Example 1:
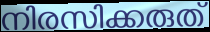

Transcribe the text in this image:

നിരസിക്കരുത്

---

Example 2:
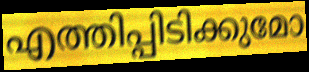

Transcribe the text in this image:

എത്തിപ്പിടിക്കുമോ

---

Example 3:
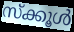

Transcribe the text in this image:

സ്ക്കൂൾ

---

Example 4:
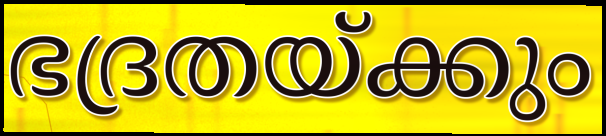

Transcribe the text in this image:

ഭദ്രതയ്ക്കും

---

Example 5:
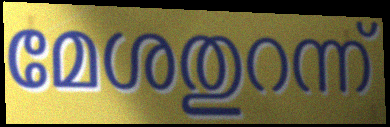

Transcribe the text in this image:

മേശതുറന്ന്